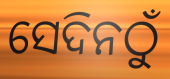
ସେଦିନଠୁଁ